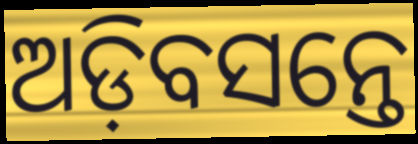
ଅଡ଼ିବସନ୍ତେ